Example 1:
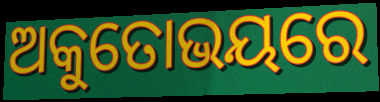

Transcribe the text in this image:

ଅକୁତୋଭୟରେ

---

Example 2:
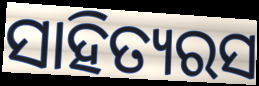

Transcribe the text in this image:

ସାହିତ୍ୟରସ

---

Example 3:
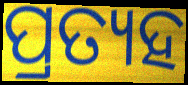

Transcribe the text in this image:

ପ୍ରତ୍ୟହ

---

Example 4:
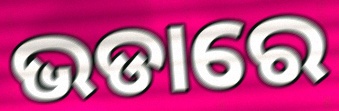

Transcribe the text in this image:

ଭଡାରେ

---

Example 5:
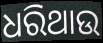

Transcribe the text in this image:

ଧରିଥାଉ